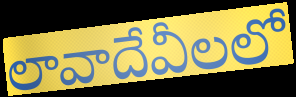
లావాదేవీలలో